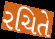
રચિતે